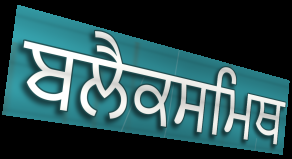
ਬਲੈਕਸਮਿਥ